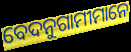
ବେଦନୁଗାମୀମାନେ